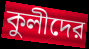
কুলীদের